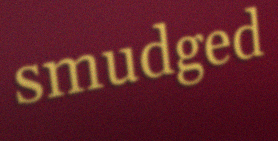
smudged